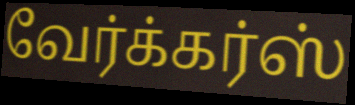
வேர்க்கர்ஸ்